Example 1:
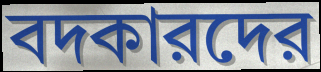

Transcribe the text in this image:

বদকারদের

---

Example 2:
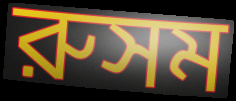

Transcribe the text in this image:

রুসম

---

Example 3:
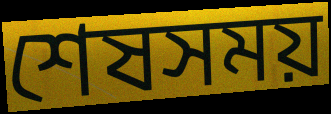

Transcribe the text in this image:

শেষসময়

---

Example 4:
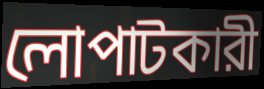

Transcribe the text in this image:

লোপাটকারী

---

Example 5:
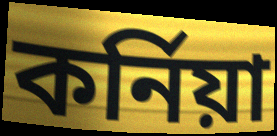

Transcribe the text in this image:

কর্নিয়া